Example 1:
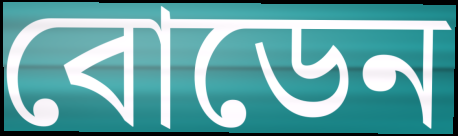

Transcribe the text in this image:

বোডেন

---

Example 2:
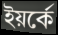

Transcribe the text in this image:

ইয়র্কে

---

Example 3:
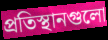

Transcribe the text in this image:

প্রতিস্থানগুলো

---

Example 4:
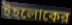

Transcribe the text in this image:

ইহলোকের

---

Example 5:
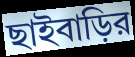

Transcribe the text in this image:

ছাইবাড়ির